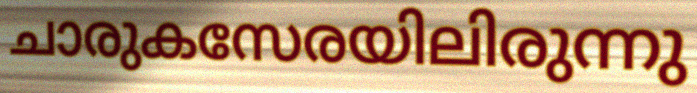
ചാരുകസേരയിലിരുന്നു